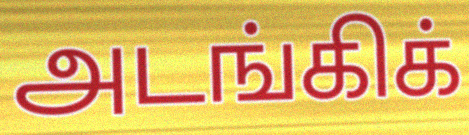
அடங்கிக்